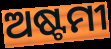
ଅଷ୍ଟମୀ